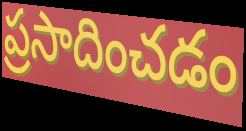
ప్రసాదించడం